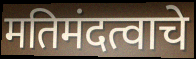
मतिमंदत्वाचे